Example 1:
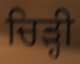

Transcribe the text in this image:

ਚਿੜ੍ਹੀ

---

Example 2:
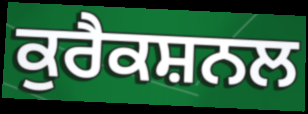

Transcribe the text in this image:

ਕੁਰੈਕਸ਼ਨਲ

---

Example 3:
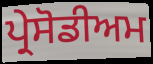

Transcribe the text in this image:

ਪ੍ਰੇਸੋਡੀਅਮ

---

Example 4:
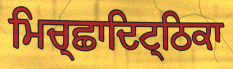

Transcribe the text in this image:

ਮਿਚ੍ਛਾਦਿਟ੍ਠਿਕਾ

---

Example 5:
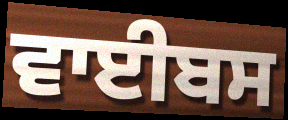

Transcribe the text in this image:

ਵਾਈਬਸ